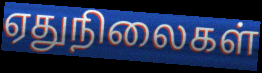
ஏதுநிலைகள்